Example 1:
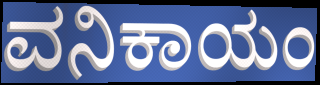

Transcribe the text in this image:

ವನಿಕಾಯಂ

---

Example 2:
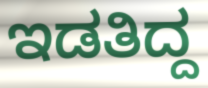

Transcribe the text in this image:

ಇಡತಿದ್ದ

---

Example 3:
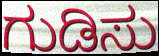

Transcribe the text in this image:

ಗುಡಿಸು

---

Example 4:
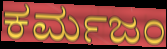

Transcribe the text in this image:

ಕರ್ಮಜಂ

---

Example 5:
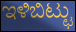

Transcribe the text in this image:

ಇಳಿಬಿಟ್ಟು